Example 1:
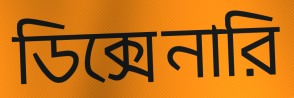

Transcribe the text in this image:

ডিক্সেনারি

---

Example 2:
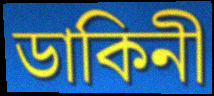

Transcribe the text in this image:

ডাকিনী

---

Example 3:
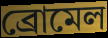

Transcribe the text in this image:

ব্রোমেল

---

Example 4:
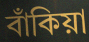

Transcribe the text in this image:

বাঁকিয়া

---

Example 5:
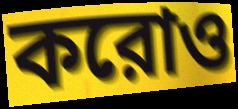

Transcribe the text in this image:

করোও